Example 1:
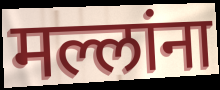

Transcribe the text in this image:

मल्लांना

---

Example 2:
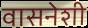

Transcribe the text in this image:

वासनेशी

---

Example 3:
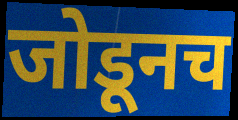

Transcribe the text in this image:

जोडूनच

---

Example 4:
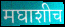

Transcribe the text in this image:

मघाशीच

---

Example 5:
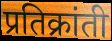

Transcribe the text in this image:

प्रतिक्रांती